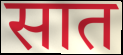
सात